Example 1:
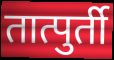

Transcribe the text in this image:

तात्पुर्ती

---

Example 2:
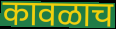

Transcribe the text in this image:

कावळाच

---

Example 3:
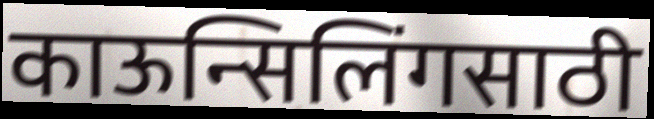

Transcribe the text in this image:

काऊन्सिलिंगसाठी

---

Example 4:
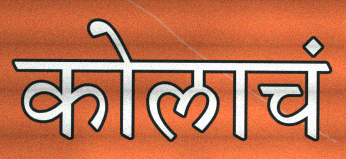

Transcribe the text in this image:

कोलाचं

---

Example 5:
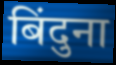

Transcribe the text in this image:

बिंदुना